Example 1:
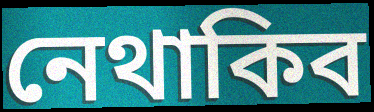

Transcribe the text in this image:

নেথাকিব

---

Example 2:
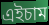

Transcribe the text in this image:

এইচাম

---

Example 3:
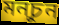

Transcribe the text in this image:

মনচুন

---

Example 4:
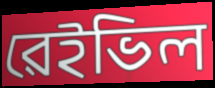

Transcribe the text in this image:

ৱেইভিল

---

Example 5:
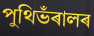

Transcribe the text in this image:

পুথিভঁৰালৰ